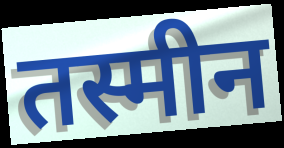
तस्मीन